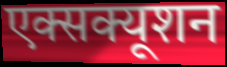
एक्सक्यूशन